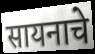
सायनाचे